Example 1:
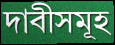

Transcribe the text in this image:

দাবীসমূহ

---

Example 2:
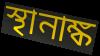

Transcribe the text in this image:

স্থানাঙ্ক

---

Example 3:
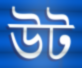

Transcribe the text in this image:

উট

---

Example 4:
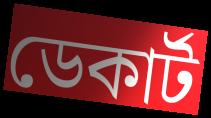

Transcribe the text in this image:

ডেকাৰ্ট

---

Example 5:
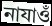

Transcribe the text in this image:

নাযাওঁ